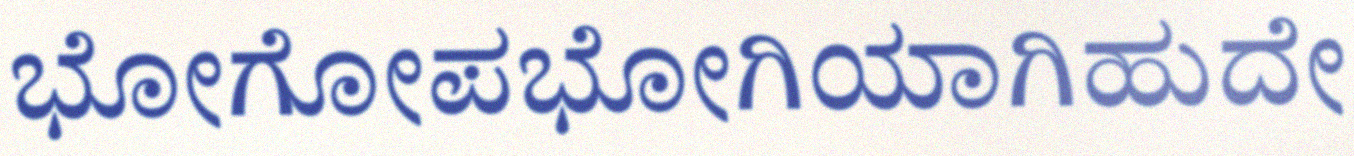
ಭೋಗೋಪಭೋಗಿಯಾಗಿಹುದೇ